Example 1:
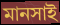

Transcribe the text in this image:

মানসাই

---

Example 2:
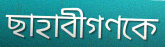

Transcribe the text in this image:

ছাহাবীগণকে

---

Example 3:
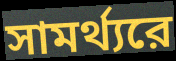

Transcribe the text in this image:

সামর্থ্যরে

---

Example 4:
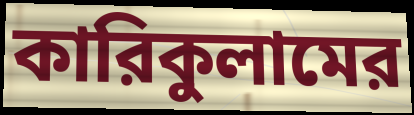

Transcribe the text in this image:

কারিকুলামের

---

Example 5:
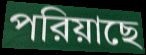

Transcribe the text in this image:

পরিয়াছে